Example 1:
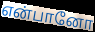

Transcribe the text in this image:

என்பானோ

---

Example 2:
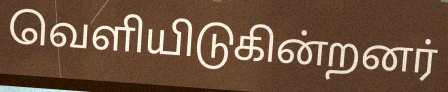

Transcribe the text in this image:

வெளியிடுகின்றனர்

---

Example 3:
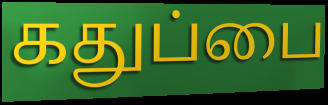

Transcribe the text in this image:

கதுப்பை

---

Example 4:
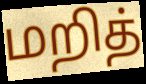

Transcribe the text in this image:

மறித்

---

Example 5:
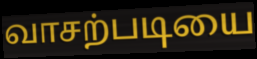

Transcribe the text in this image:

வாசற்படியை